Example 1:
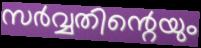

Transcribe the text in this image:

സർവ്വതിന്റെയും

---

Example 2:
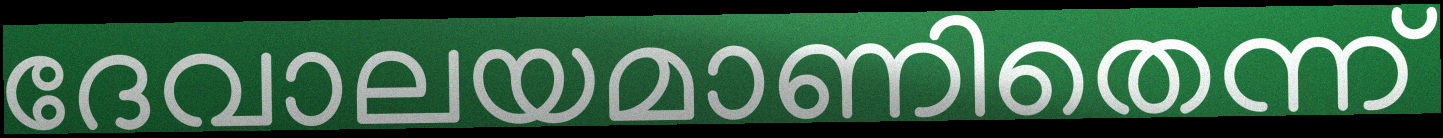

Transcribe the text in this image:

ദേവാലയമാണിതെന്ന്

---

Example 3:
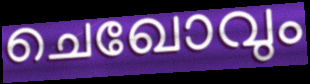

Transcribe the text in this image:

ചെഖോവും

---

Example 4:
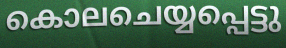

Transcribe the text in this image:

കൊലചെയ്യപ്പെട്ടു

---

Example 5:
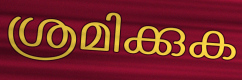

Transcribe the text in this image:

ശ്രമിക്കുക